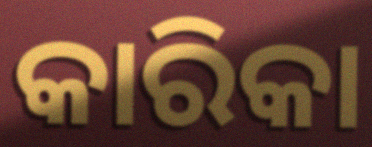
କାରିକା